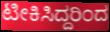
ಟೀಕಿಸಿದ್ದರಿಂದ